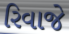
રિવાજે